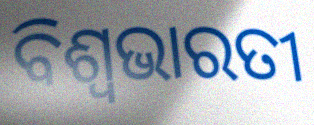
ବିଶ୍ୱଭାରତୀ